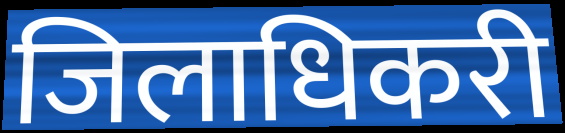
जिलाधिकरी